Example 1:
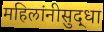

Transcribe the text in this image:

महिलांनीसुद्धा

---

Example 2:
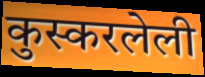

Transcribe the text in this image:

कुस्करलेली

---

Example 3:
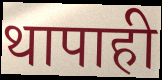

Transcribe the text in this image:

थापाही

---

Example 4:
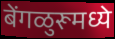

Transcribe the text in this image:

बेंगळुरूमध्ये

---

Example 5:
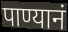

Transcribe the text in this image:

पाण्यानं